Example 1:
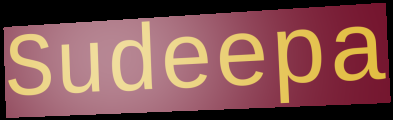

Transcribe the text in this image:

Sudeepa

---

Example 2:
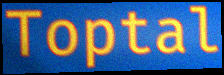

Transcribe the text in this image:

Toptal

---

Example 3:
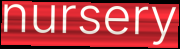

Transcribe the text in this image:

nursery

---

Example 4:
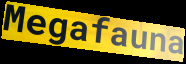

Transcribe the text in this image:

Megafauna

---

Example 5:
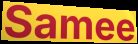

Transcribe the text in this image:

Samee